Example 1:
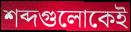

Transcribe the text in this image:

শব্দগুলোকেই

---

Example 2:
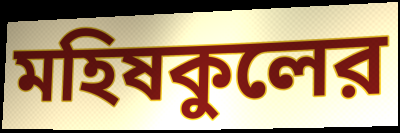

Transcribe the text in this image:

মহিষকুলের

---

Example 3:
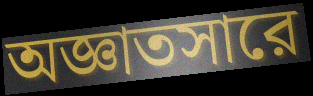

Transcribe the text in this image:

অজ্ঞাতসারে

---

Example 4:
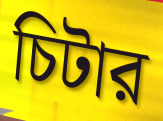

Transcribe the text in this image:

চিটার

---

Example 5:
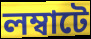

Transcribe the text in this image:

লম্বাটে